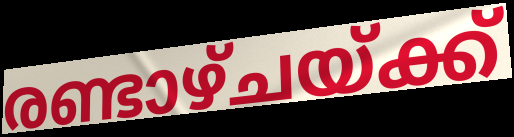
രണ്ടാഴ്ചയ്ക്ക്